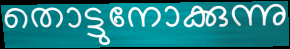
തൊട്ടുനോക്കുന്നു